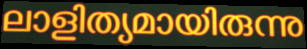
ലാളിത്യമായിരുന്നു